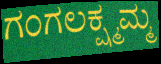
ಗಂಗಲಕ್ಷ್ಮಮ್ಮ